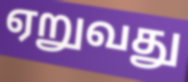
ஏறுவது